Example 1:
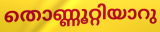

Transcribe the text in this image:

തൊണ്ണൂറ്റിയാറു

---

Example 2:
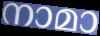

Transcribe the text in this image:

നാമാ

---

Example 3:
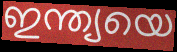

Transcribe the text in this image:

ഇന്ത്യയെ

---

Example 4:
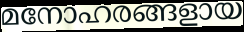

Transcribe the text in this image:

മനോഹരങ്ങളായ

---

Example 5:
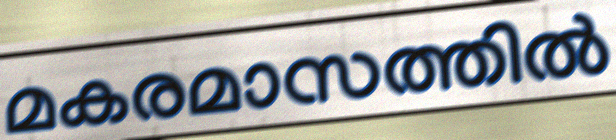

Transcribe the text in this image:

മകരമാസത്തിൽ